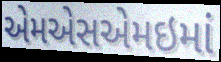
એમએસએમઇમાં